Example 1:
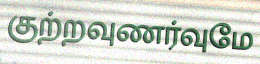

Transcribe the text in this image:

குற்றவுணர்வுமே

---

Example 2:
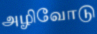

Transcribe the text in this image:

அழிவோடு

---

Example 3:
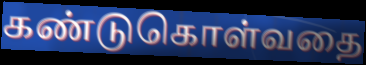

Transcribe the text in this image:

கண்டுகொள்வதை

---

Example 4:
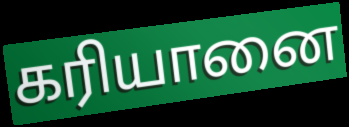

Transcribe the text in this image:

கரியானை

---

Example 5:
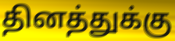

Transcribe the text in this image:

தினத்துக்கு